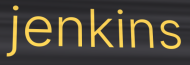
jenkins